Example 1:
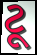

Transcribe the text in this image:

ટૂ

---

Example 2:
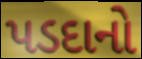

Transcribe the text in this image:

પડદાનો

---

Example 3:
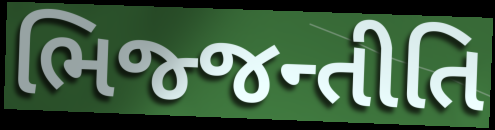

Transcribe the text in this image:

ભિજ્જન્તીતિ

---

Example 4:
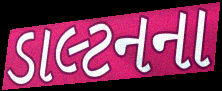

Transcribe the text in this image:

ડાલ્ટનના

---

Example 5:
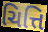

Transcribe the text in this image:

ચિત્તિ